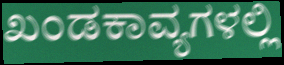
ಖಂಡಕಾವ್ಯಗಳಲ್ಲಿ